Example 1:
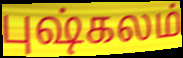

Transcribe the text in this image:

புஷ்கலம்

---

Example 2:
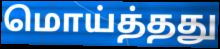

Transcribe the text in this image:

மொய்த்தது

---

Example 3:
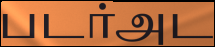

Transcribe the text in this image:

படர்அட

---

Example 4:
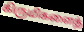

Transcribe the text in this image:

கிருமிகளைத்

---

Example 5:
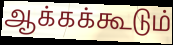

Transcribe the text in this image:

ஆக்கக்கூடும்